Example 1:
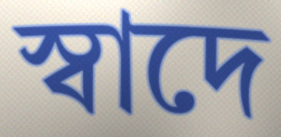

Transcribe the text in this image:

স্বাদে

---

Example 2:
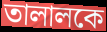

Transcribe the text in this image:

তালালকে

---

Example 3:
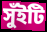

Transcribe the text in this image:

সুঁইটি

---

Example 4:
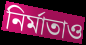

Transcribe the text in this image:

নির্মাতাও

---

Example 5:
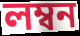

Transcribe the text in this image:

লম্বন